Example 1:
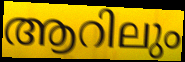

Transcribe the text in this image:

ആറിലും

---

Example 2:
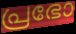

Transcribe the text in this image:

പ്രഭോ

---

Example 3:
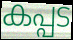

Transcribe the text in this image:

കപ്പട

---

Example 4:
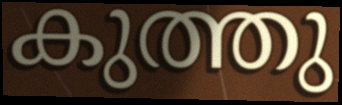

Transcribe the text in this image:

കുത്തു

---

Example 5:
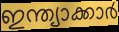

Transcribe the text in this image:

ഇന്ത്യാക്കാർ